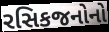
રસિકજનોનો